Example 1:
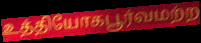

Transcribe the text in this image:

உத்தியோகபூர்வமற்ற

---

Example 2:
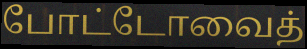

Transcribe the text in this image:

போட்டோவைத்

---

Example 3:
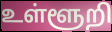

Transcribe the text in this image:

உள்ளூறி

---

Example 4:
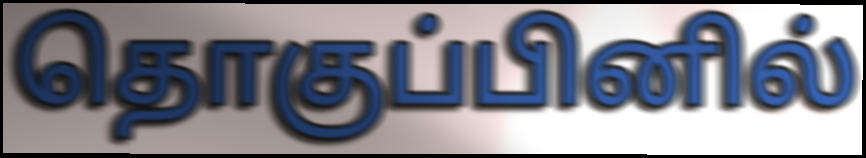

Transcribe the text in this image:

தொகுப்பினில்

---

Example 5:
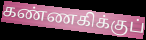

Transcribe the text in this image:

கண்ணகிக்குப்